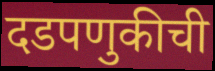
दडपणुकीची